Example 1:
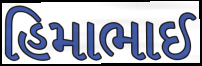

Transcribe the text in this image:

હિમાભાઈ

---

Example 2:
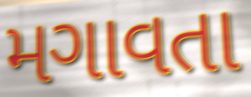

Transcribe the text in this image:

મગાવતા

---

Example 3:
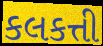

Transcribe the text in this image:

કલકત્તી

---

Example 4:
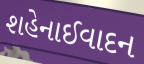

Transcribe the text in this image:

શહેનાઈવાદન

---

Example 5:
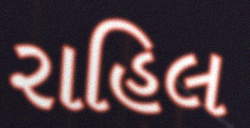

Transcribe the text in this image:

રાહિલ